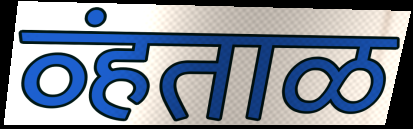
व्हंताळ